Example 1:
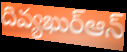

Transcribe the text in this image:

దివ్యఖుర్ఆన్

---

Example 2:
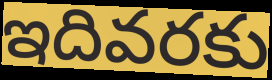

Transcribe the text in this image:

ఇదివరకు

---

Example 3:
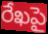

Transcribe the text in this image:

రేఖపై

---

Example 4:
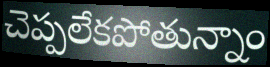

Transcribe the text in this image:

చెప్పలేకపోతున్నాం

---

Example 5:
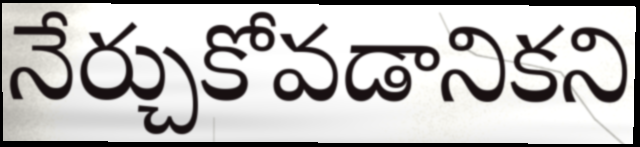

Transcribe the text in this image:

నేర్చుకోవడానికని